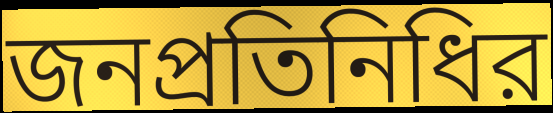
জনপ্রতিনিধির